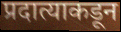
प्रदात्याकडून